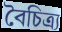
বৈচিত্ৰ্য